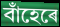
বাঁহেৰে